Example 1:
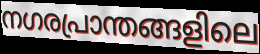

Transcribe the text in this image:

നഗരപ്രാന്തങ്ങളിലെ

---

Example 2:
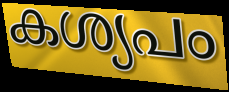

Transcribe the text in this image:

കശ്യപം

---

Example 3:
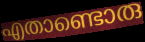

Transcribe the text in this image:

എതാണ്ടൊരു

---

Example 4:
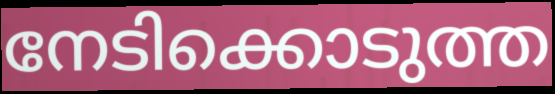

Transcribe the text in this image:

നേടിക്കൊടുത്ത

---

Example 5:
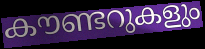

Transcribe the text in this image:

കൗണ്ടറുകളും